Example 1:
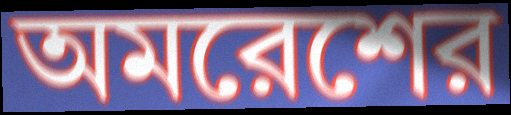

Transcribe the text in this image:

অমরেশের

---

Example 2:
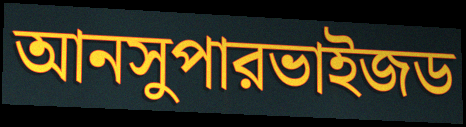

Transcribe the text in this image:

আনসুপারভাইজড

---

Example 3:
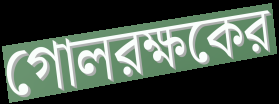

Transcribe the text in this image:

গোলরক্ষকের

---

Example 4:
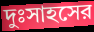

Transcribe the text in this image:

দুঃসাহসের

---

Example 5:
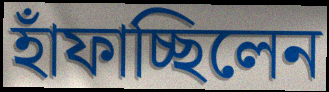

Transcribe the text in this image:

হাঁফাচ্ছিলেন